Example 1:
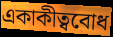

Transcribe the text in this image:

একাকীত্ববোধ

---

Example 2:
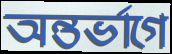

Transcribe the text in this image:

অন্তর্ভাগে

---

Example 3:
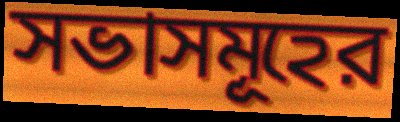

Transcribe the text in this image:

সভাসমূহের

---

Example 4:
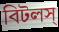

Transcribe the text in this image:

বিটলস্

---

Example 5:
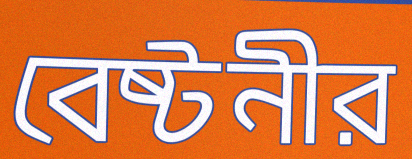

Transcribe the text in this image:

বেষ্টনীর